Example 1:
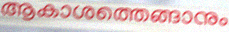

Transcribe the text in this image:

ആകാശത്തെങ്ങാനും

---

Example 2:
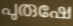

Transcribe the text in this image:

പുരുഷേ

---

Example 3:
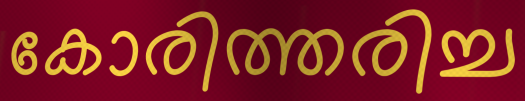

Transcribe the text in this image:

കോരിത്തരിച്ച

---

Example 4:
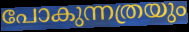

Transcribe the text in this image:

പോകുന്നത്രയും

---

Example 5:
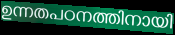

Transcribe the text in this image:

ഉന്നതപഠനത്തിനായി